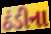
ઠંડીના